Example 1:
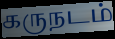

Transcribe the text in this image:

கருநடம்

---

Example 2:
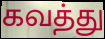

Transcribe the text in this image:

கவத்து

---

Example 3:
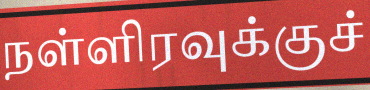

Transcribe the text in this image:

நள்ளிரவுக்குச்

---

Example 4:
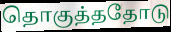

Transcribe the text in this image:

தொகுத்ததோடு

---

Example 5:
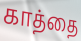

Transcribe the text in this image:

காத்தை